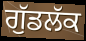
ਗੁੱਡਲੱਕ